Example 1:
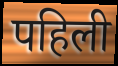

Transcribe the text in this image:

पहिली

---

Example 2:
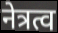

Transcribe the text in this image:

नेत्रत्व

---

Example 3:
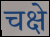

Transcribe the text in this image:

चक्षे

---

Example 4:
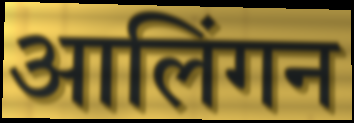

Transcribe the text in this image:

आलिंगन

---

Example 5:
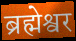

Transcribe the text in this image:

ब्रह्मेश्वर